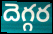
దెగ్గర